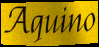
Aquino